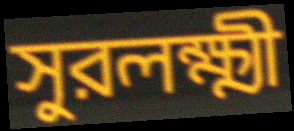
সুরলক্ষ্মী